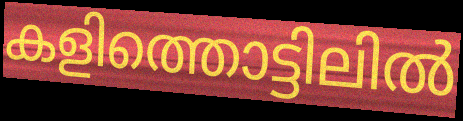
കളിത്തൊട്ടിലിൽ